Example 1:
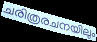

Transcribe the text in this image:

ചരിത്രരചനയിലും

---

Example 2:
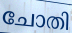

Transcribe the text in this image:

ചോതി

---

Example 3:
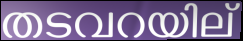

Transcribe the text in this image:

തടവറയില്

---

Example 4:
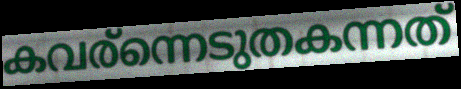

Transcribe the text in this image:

കവര്ന്നെടുതകന്നത്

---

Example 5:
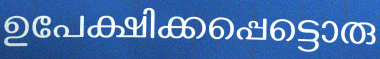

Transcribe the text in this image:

ഉപേക്ഷിക്കപ്പെട്ടൊരു